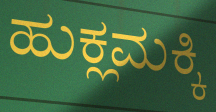
ಹುಕ್ಲಮಕ್ಕಿ